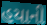
હયાની